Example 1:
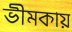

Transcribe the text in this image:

ভীমকায়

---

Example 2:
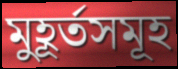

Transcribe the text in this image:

মুহূৰ্তসমূহ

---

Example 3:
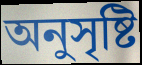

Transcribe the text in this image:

অনুসৃষ্টি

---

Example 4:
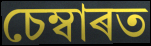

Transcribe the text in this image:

চেম্বাৰত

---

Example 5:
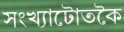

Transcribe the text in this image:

সংখ্যাটোতকৈ